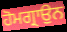
ਹੋਮਗ੍ਰਾਉਨ